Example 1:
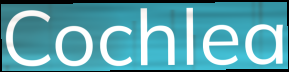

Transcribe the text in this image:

Cochlea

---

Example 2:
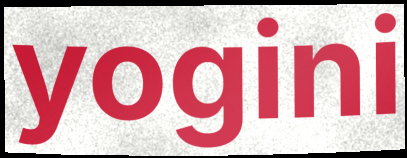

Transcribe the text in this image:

yogini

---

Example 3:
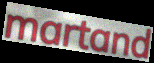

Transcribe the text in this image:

martand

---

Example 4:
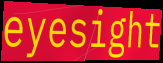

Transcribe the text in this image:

eyesight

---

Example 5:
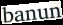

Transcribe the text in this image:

banun